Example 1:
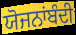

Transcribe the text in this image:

ਯੋਜਨਾਂਬੰਦੀ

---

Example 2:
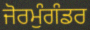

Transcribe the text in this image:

ਜੋਰਮੁੰਗੰਡਰ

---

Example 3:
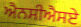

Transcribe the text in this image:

ਐਨਸੀਐਸਏ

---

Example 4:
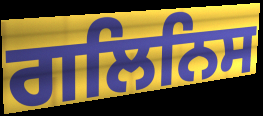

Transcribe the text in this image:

ਗਲਿਨਿਸ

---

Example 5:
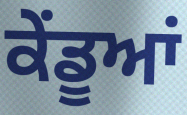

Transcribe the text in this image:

ਕੇਂਡੂਆਂ